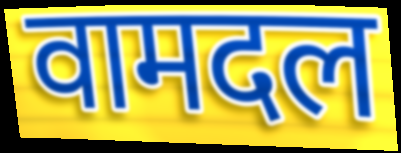
वामदल